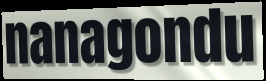
nanagondu